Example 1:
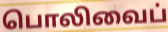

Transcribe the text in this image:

பொலிவைப்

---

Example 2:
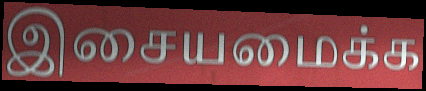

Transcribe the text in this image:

இசையமைக்க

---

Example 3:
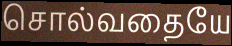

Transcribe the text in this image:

சொல்வதையே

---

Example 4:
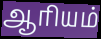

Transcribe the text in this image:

ஆரியம்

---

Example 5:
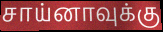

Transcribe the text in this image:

சாய்னாவுக்கு